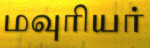
மவுரியர்